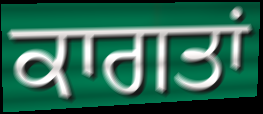
ਕਾਗਤਾਂ